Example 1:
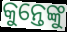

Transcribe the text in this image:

କୁନ୍ତେଙ୍କୁ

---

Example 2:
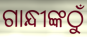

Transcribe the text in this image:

ଗାନ୍ଧୀଙ୍କଠୁଁ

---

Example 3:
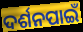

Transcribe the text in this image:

ଦର୍ଶନପାଇଁ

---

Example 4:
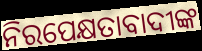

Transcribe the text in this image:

ନିରପେକ୍ଷତାବାଦୀଙ୍କ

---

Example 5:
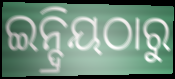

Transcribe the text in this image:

ଇନ୍ଦ୍ରିୟଠାରୁ